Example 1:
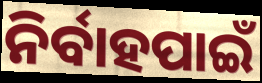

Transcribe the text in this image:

ନିର୍ବାହପାଇଁ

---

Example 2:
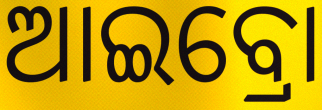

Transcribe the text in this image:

ଆଇବ୍ରୋ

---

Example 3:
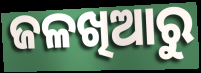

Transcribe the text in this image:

ଜଳଖିଆରୁ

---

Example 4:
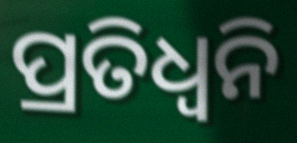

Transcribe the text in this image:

ପ୍ରତିଧ୍ବନି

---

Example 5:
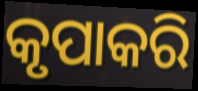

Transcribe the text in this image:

କୃପାକରି